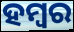
ହମ୍ବର